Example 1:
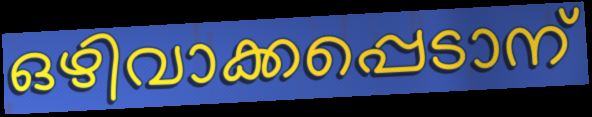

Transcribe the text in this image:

ഒഴിവാക്കപ്പെടാന്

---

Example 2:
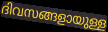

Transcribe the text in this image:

ദിവസങ്ങളായുള്ള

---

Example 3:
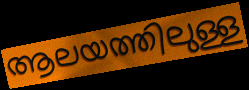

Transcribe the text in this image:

ആലയത്തിലുള്ള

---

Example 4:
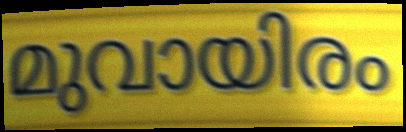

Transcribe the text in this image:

മുവായിരം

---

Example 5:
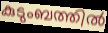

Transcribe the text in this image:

കുടുംബത്തിൽ